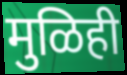
मुळिही